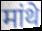
मांथे